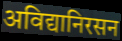
अविद्यानिरसन